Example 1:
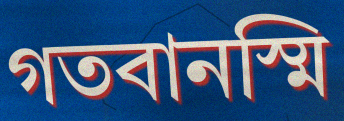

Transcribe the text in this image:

গতবানস্মি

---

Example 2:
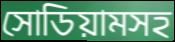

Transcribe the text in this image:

সোডিয়ামসহ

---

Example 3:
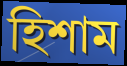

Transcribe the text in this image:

হিশাম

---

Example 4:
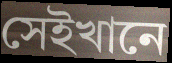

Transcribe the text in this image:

সেইখানে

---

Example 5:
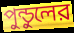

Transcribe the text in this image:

পুন্ডুলের